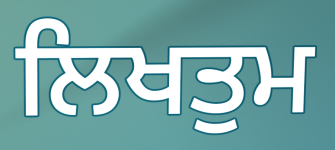
ਲਿਖਤੁਮ